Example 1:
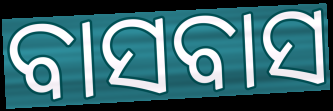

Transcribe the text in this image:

ବାସବାସ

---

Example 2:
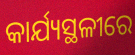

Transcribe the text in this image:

କାର୍ଯ୍ୟସ୍ଥଳୀରେ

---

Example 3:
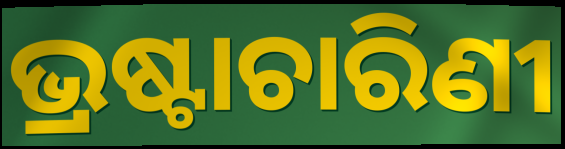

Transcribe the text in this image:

ଭ୍ରଷ୍ଟାଚାରିଣୀ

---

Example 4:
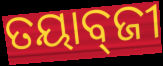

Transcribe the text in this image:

ତୟାବ୍‌ଜୀ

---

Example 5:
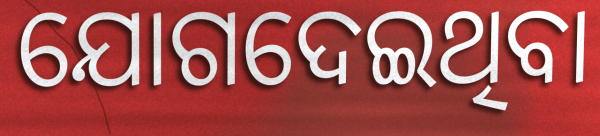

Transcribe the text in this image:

ଯୋଗଦେଇଥିବା